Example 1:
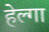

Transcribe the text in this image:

हेल्गा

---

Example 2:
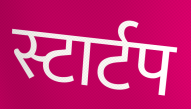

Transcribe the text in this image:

स्टार्टप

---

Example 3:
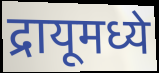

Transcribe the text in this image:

द्रायूमध्ये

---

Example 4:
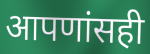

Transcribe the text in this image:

आपणांसही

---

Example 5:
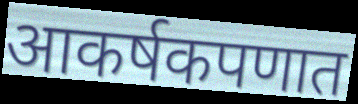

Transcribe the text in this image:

आकर्षकपणात